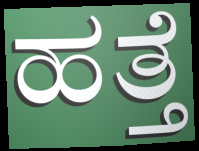
ಹತ್ತೆ